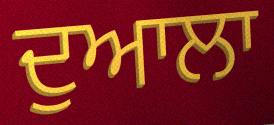
ਦੁਆਲਾ